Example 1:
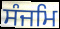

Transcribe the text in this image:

ਸੰਜਮਿ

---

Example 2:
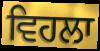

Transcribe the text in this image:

ਵਿਹਲਾ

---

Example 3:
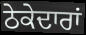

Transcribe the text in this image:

ਠੇਕੇਦਾਰਾਂ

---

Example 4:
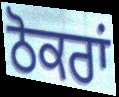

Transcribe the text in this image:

ਠੋਕਰਾਂ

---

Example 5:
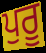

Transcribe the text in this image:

ਪੁਰੂ